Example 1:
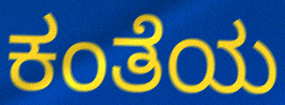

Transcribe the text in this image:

ಕಂತೆಯ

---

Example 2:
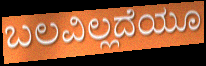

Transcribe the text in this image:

ಬಲವಿಲ್ಲದೆಯೂ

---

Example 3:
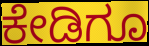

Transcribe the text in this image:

ಕೇಡಿಗೂ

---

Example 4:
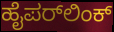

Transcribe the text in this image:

ಹೈಪರ್‌ಲಿಂಕ್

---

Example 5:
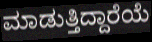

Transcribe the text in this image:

ಮಾಡುತ್ತಿದ್ದಾರೆಯೆ